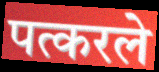
पत्करले